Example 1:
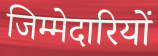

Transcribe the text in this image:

जिम्मेदारियों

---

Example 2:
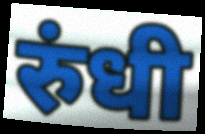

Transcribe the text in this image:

रुंधी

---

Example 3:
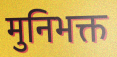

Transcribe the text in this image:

मुनिभक्त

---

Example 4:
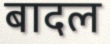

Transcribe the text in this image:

बादल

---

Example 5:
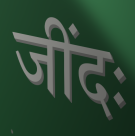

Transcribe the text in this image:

जींदः